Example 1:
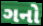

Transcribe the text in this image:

ગનો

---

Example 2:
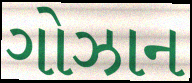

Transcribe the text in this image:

ગોઝાન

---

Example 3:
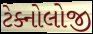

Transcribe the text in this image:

ટેક્નોલોજી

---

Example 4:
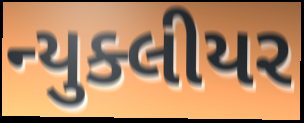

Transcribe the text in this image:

ન્યુક્લીયર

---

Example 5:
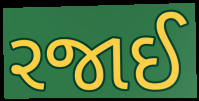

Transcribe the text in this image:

રજાઈ